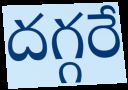
దగ్గరే